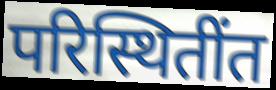
परिस्थितींत